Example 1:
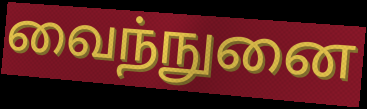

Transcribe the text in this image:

வைந்நுனை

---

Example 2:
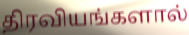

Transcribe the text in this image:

திரவியங்களால்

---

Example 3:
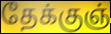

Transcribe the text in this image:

தேக்குஞ்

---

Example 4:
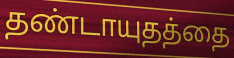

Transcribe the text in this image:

தண்டாயுதத்தை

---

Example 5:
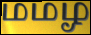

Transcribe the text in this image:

மமழ